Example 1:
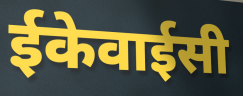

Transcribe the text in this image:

ईकेवाईसी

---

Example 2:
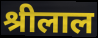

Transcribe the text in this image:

श्रीलाल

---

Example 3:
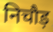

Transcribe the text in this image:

निचौड़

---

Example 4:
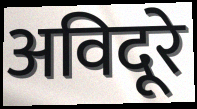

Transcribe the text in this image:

अविदूरे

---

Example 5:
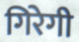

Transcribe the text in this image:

गिरेगी